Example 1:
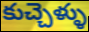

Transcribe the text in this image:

కుచ్చెళ్ళు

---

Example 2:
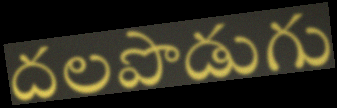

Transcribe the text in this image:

దలపొడుగు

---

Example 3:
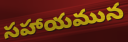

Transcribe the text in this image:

సహాయమున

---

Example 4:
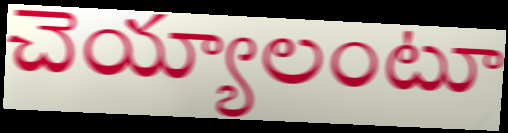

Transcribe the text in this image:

చెయ్యాలంటూ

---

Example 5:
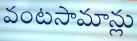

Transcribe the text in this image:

వంటసామాన్లు